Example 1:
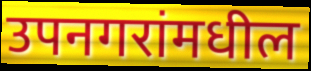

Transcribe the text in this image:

उपनगरांमधील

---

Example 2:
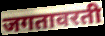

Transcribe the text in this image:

जगतावरती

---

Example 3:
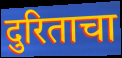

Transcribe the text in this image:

दुरिताचा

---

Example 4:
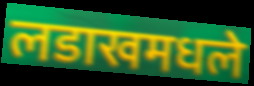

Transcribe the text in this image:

लडाखमधले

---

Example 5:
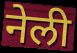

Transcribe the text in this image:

नेली